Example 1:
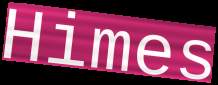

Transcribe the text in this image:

Himes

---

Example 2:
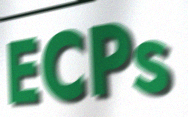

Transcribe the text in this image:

ECPs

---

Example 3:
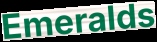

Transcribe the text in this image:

Emeralds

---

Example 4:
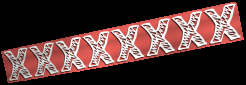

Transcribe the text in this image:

xxxxxxxx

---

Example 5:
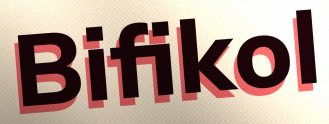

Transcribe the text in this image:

Bifikol